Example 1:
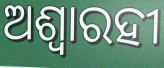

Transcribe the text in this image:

ଅଶ୍ୱାରହୀ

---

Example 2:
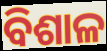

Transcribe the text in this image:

ବିଶାଳ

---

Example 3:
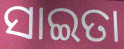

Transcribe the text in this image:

ସାଇତା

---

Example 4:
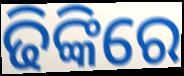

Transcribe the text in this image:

ଢିଙ୍କିରେ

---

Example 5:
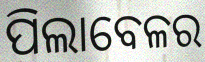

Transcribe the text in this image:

ପିଲାବେଳର